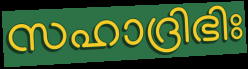
സഹാദ്രിഭിഃ